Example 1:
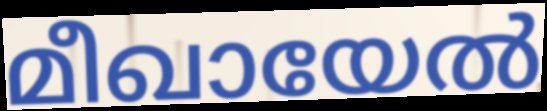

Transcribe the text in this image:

മീഖായേൽ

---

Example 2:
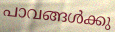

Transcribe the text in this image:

പാവങ്ങൾക്കു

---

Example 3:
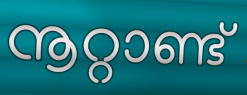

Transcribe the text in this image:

നൂറ്റാണ്ട്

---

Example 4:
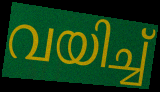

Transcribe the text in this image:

വയിച്ച്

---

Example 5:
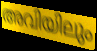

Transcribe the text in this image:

അവിയിലും